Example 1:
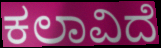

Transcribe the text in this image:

ಕಲಾವಿದೆ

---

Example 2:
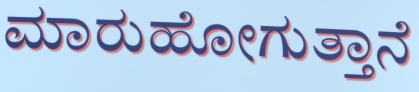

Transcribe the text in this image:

ಮಾರುಹೋಗುತ್ತಾನೆ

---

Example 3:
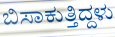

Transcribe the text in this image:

ಬಿಸಾಕುತ್ತಿದ್ದಳು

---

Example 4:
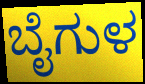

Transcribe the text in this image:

ಬೈಗುಳ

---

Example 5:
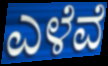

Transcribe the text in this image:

ಎಳೆವೆ